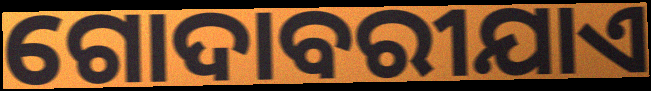
ଗୋଦାବରୀଯାଏ